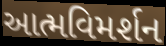
આત્મવિમર્શન